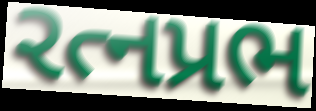
રત્નપ્રભ